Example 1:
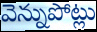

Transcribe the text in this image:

వెన్నుపోట్లు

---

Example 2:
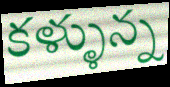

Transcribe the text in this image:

కళ్ళున్న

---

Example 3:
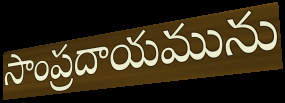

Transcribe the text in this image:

సాంప్రదాయమును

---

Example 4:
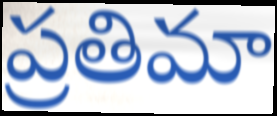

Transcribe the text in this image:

ప్రతిమా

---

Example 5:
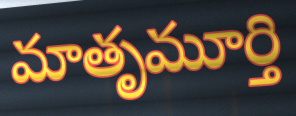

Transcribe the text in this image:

మాతృమూర్తి